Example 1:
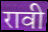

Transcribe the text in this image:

रावी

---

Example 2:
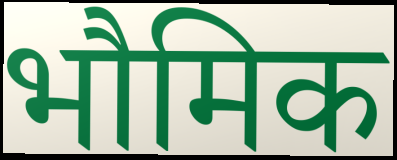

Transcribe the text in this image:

भौमिक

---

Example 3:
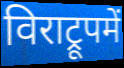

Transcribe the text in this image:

विराट्रूपमें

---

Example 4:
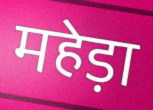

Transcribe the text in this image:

महेड़ा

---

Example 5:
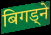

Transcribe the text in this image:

बिगड्ने